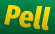
Pell